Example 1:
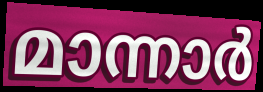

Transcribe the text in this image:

മാന്നാർ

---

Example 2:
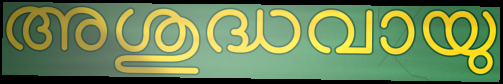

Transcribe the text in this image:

അശുദ്ധവായു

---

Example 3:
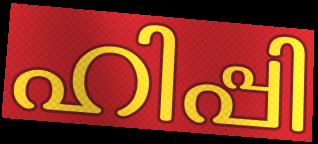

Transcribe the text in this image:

ഹിപ്പി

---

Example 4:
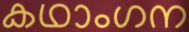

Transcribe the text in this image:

കഥാംഗന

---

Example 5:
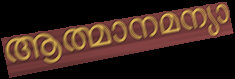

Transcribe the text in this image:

ആത്മാനമന്യാ